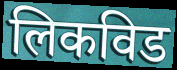
लिकविड